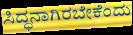
ಸಿದ್ಧನಾಗಿರಬೇಕೆಂದು